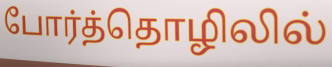
போர்த்தொழிலில்